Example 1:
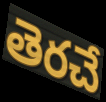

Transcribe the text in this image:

తెరచే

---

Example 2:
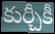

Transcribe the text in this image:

కుర్చీకీ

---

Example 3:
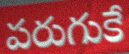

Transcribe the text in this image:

పరుగుకే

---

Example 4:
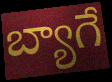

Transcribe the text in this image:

బ్యాగే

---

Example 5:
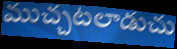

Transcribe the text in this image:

ముచ్చటలాడుచు